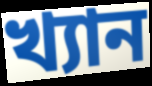
খ্যান